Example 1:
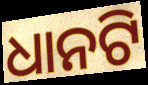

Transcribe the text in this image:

ଧାନଟି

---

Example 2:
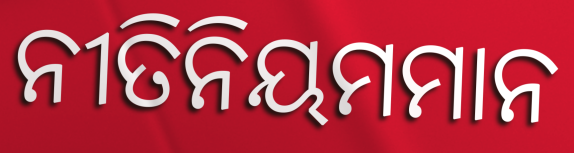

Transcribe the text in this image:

ନୀତିନିୟମମାନ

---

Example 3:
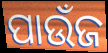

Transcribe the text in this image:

ପାଉଁଜ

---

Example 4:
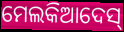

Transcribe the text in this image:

ମେଲକିଆଦେସ୍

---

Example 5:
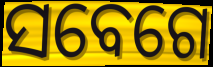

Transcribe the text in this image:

ସବେଗେ